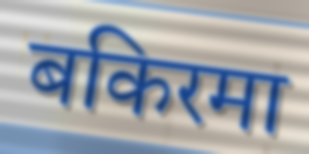
बकिरमा